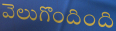
వెలుగొందింది